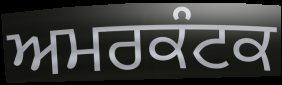
ਅਮਰਕੰਟਕ